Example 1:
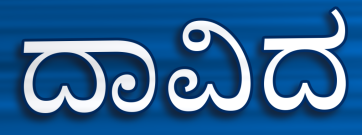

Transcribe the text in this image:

ದಾವಿದ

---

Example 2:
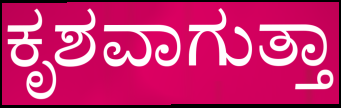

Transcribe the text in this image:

ಕೃಶವಾಗುತ್ತಾ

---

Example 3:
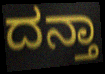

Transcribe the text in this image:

ದನ್ತಾ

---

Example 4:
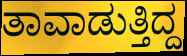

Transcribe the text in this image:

ತಾವಾಡುತ್ತಿದ್ದ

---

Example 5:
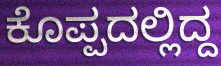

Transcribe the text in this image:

ಕೊಪ್ಪದಲ್ಲಿದ್ದ